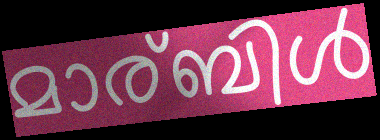
മാര്ബിൾ